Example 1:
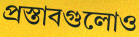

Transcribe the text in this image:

প্রস্তাবগুলোও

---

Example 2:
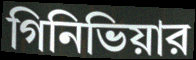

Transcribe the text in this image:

গিনিভিয়ার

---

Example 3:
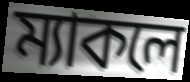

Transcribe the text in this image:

ম্যাকলে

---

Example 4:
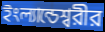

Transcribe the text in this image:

ইংল্যান্ডেশ্বরীর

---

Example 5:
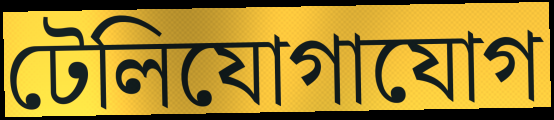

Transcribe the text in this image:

টেলিযোগাযোগ